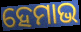
ହେମାଭ